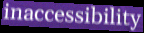
inaccessibility